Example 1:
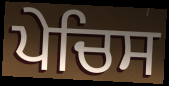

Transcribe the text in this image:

ਪੇਚਿਸ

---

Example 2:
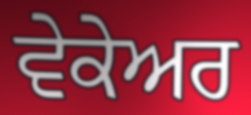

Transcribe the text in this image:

ਵੇਕੇਅਰ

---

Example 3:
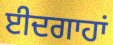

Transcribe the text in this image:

ਈਦਗਾਹਾਂ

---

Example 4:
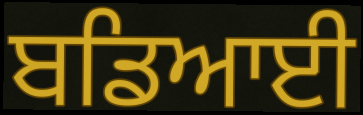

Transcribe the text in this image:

ਬਡਿਆਈ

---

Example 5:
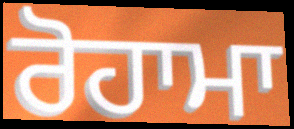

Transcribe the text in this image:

ਰੋਹਾਮਾ